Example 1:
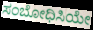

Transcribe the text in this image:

ಸಂಬೋಧಿಸಿಯೇ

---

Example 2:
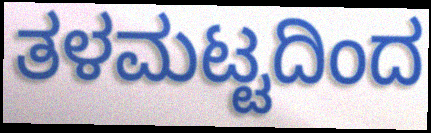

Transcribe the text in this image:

ತಳಮಟ್ಟದಿಂದ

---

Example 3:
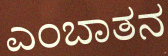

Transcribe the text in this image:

ಎಂಬಾತನ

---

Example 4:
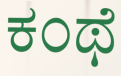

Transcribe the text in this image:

ಕಂಥೆ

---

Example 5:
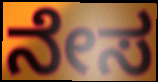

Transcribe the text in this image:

ನೇಸ